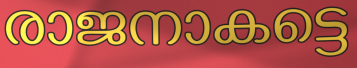
രാജനാകട്ടെ